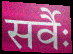
सर्वैः